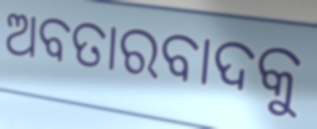
ଅବତାରବାଦକୁ